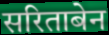
सरिताबेन